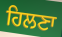
ਹਿਲਣਾ